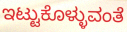
ಇಟ್ಟುಕೊಳ್ಳುವಂತೆ